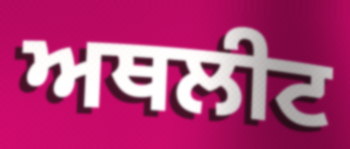
ਅਥਲੀਟ